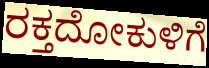
ರಕ್ತದೋಕುಳಿಗೆ